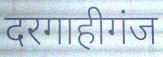
दरगाहीगंज